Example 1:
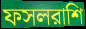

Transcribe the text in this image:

ফসলরাশি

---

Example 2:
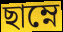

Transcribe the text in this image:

ছাম্নে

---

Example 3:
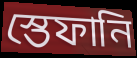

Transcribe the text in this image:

স্তেফানি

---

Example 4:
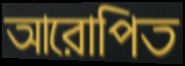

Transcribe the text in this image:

আরোপিত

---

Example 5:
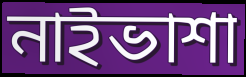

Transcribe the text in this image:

নাইভাশা